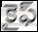
కైఫ్